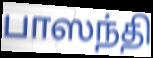
பாஸந்தி